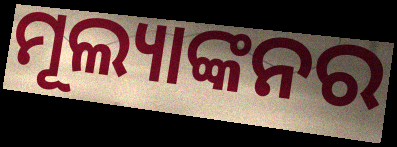
ମୂଲ୍ୟାଙ୍କନର